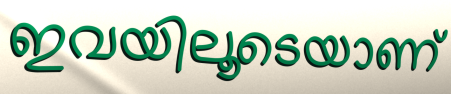
ഇവയിലൂടെയാണ്